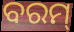
ବରମ୍